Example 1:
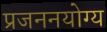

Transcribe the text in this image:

प्रजननयोग्य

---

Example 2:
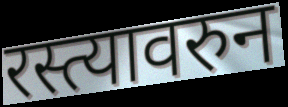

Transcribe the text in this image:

रस्त्यावरुन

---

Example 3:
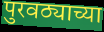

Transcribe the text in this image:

पुरवठ्याच्या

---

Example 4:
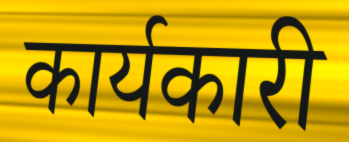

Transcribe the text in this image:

कार्यकारी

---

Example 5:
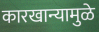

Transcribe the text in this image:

कारखान्यामुळे